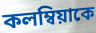
কলম্বিয়াকে